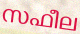
സഫീല